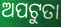
ଅପଟୁତା